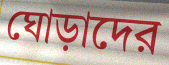
ঘোড়াদের